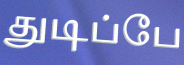
துடிப்பே